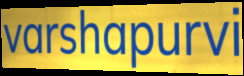
varshapurvi